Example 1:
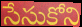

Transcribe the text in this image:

సేసుకోని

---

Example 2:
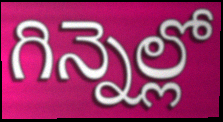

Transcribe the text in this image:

గిన్నెల్లో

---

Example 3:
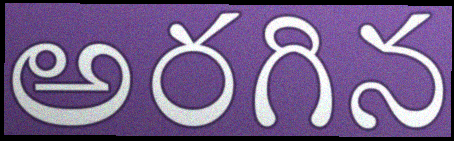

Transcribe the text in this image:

అరగిన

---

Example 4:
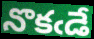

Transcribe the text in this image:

నొకఁడే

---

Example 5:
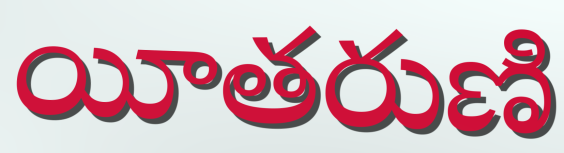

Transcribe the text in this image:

యీతరుణి